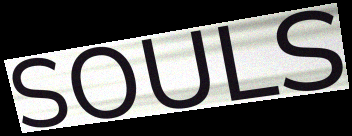
SOULS